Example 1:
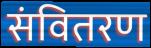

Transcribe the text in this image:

संवितरण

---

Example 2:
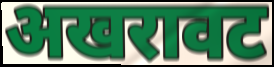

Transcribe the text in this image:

अखरावट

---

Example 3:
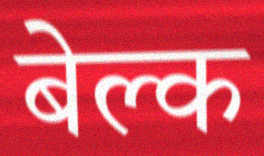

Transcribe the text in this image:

बेल्क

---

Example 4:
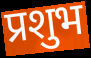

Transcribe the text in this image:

प्रशुभ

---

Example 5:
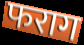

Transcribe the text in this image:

फराग